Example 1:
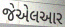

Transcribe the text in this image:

જેએલઆર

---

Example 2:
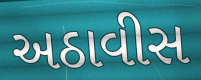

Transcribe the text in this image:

અઠાવીસ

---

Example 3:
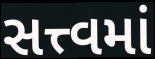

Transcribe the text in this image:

સત્ત્વમાં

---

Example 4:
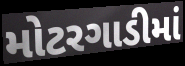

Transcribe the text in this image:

મોટરગાડીમાં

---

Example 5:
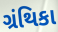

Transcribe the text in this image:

ગ્રંથિકા